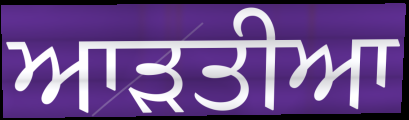
ਆੜਤੀਆ